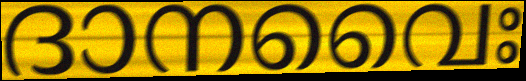
ദാനവൈഃ